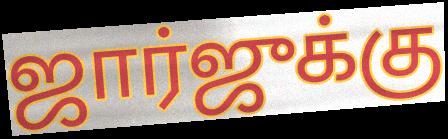
ஜார்ஜுக்கு